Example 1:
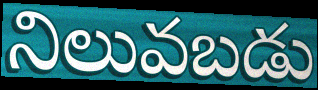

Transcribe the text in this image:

నిలువబడు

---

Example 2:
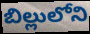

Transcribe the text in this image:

బిల్లులోని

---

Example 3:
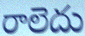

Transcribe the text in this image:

రాలెదు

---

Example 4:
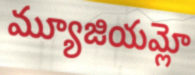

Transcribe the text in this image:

మ్యూజియమ్లో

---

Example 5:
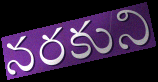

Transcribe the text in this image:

నరకుని